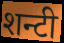
शन्टी